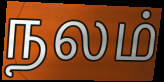
நலம்